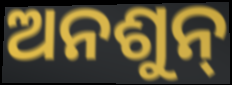
ଅନଶୁନ୍